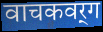
वाचकवर्ग